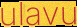
ulavu